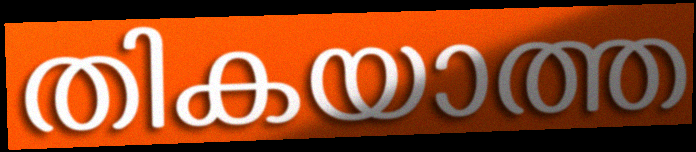
തികയാത്ത